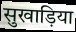
सुखाड़िया